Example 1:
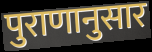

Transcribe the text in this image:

पुराणानुसार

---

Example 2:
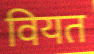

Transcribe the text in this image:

वियत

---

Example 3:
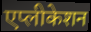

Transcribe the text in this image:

एप्‍लीकेशन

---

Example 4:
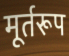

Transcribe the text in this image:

मूर्तरूप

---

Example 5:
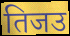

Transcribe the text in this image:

तिजउ